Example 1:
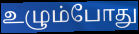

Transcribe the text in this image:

உழும்போது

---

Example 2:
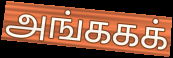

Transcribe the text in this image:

அங்ககக்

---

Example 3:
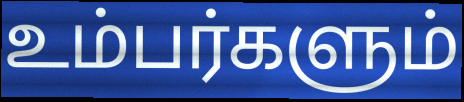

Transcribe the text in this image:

உம்பர்களும்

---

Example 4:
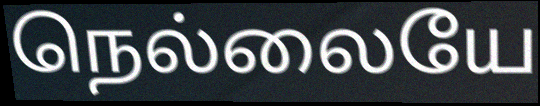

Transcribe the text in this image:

நெல்லையே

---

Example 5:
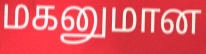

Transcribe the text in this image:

மகனுமான